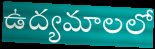
ఉద్యమాలలో